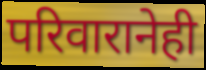
परिवारानेही